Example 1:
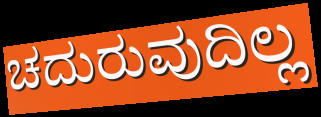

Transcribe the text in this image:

ಚದುರುವುದಿಲ್ಲ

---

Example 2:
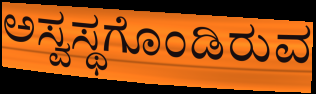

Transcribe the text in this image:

ಅಸ್ವಸ್ಥಗೊಂಡಿರುವ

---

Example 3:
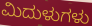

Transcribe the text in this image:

ಮಿದುಳುಗಳು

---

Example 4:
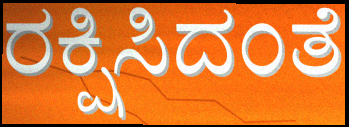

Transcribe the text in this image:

ರಕ್ಷಿಸಿದಂತೆ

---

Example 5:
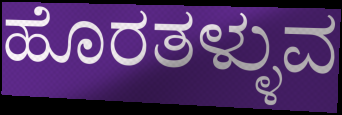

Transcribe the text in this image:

ಹೊರತಳ್ಳುವ